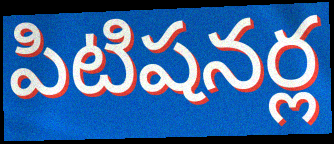
పిటిషనర్ల